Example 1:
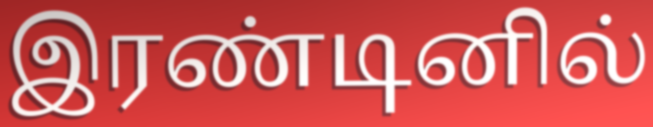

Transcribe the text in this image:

இரண்டினில்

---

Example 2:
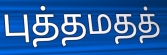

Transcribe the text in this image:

புத்தமதத்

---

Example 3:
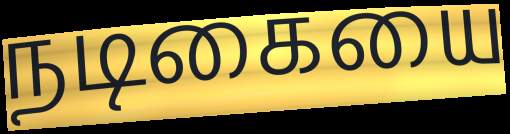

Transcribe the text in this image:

நடிகையை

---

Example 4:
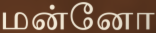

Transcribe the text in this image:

மன்னோ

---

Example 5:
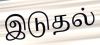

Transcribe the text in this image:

இடுதல்